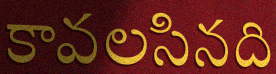
కావలసినది